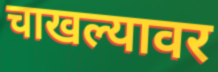
चाखल्यावर